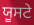
ਯੂਸਟੇ